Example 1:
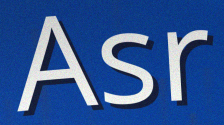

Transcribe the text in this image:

Asr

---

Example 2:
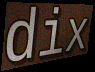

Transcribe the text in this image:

dix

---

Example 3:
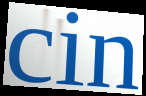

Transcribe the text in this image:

cin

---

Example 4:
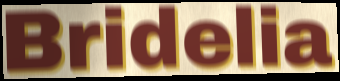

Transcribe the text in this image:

Bridelia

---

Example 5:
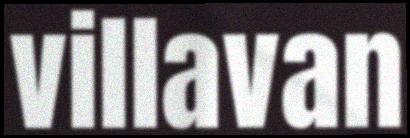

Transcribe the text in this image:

villavan